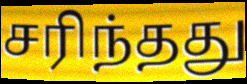
சரிந்தது